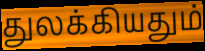
துலக்கியதும்